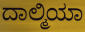
ದಾಲ್ಮಿಯಾ